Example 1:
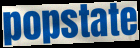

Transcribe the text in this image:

popstate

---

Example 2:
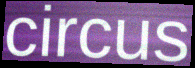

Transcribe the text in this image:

circus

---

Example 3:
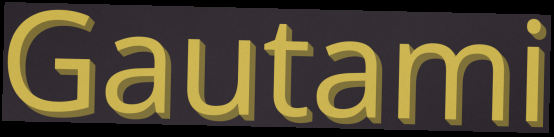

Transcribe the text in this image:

Gautami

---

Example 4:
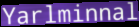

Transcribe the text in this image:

Yarlminnal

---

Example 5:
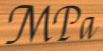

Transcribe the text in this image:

MPa